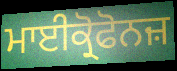
ਮਾਈਕ੍ਰੋਫੋਨਜ਼